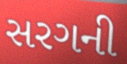
સરગની